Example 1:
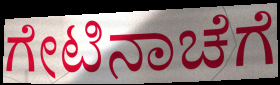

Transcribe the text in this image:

ಗೇಟಿನಾಚೆಗೆ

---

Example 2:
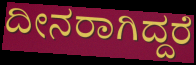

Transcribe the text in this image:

ದೀನರಾಗಿದ್ದರೆ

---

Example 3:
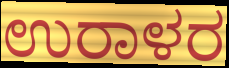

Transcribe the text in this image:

ಉರಾಳರ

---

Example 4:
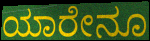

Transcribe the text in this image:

ಯಾರೇನೂ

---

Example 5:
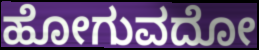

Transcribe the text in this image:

ಹೋಗುವದೋ